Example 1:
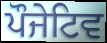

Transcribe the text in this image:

ਪੌਜੇਟਿਵ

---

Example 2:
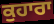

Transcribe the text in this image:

ਕੁਹਾਰਾ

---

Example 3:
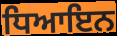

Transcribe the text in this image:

ਧਿਆਇਨ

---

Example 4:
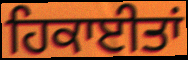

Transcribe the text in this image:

ਹਿਕਾਈਤਾਂ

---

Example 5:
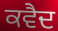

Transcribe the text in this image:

ਕਵੈਦ